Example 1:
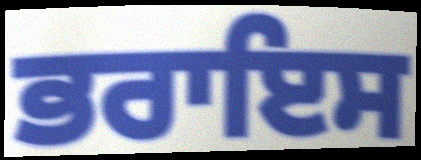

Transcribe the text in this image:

ਭਰਾਇਸ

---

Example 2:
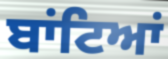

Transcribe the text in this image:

ਬਾਂਟਿਆਂ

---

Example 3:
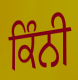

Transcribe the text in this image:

ਕਿੰਨੀ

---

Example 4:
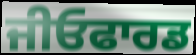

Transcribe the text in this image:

ਜੀਓਫਾਰਡ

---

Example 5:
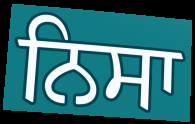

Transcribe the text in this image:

ਨਿਸਾ